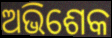
ଅଭିଶେକ